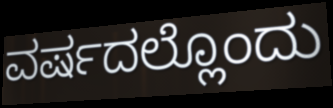
ವರ್ಷದಲ್ಲೊಂದು